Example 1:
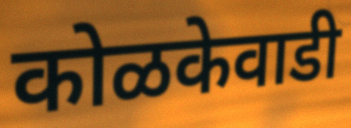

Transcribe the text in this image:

कोळकेवाडी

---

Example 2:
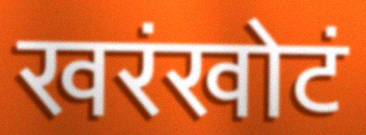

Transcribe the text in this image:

खरंखोटं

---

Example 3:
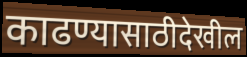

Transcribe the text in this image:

काढण्यासाठीदेखील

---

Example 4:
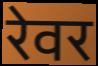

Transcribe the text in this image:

रेवर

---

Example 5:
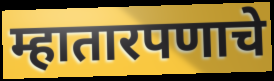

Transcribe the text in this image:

म्हातारपणाचे